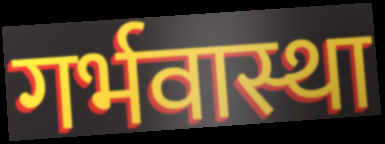
गर्भवास्था